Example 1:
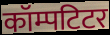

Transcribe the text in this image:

कॉम्पटिटर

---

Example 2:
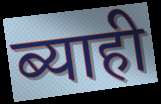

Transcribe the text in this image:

ब्याही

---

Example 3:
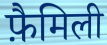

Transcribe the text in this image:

फ़ैमिली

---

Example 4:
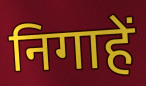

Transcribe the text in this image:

निगाहें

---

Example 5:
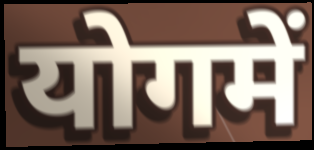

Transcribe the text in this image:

योगमें